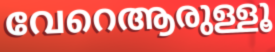
വേറെആരുള്ളൂ